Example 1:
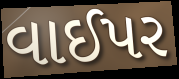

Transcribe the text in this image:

વાઈપર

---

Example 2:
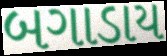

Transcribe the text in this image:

બગાડાય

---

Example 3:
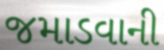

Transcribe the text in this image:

જમાડવાની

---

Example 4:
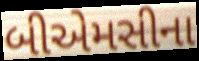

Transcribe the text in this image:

બીએમસીના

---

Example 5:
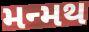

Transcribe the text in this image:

મન્મથ